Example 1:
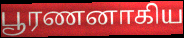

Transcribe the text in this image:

பூரணனாகிய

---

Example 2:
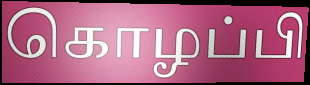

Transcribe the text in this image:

கொழப்பி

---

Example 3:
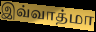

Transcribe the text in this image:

இவ்வாத்மா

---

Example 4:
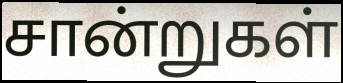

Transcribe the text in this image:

சான்றுகள்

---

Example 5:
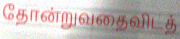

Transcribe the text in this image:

தோன்றுவதைவிடத்